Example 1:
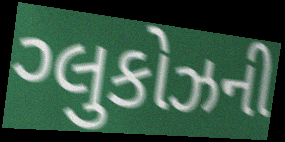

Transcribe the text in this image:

ગ્લુકોઝની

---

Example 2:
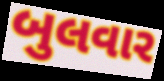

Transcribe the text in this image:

બુલવાર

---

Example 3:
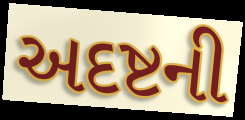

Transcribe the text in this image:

અદષ્ટની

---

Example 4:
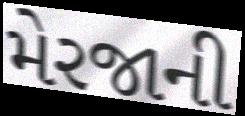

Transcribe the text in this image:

મેરજાની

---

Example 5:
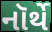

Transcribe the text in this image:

નૉર્થે